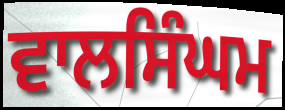
ਵਾਲਸਿੰਘਮ